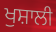
ਖੁਸ਼ਾਲੀ